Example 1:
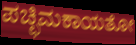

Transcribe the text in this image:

ಪಚ್ಛಿಮಕಾಯತೋ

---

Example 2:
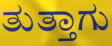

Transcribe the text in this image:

ತುತ್ತಾಗು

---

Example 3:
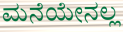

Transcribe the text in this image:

ಮನೆಯೇನಲ್ಲ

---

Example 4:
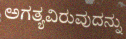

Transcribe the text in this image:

ಅಗತ್ಯವಿರುವುದನ್ನು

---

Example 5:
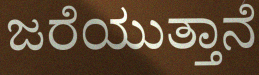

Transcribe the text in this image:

ಜರೆಯುತ್ತಾನೆ